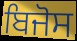
ਬਿਜੋਸ